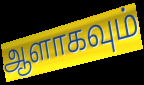
ஆளாகவும்